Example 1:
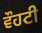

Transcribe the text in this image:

ਵੌਹਟੀ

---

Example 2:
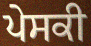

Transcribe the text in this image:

ਪੇਸਕੀ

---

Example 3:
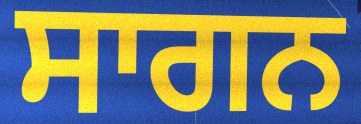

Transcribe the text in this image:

ਸਾਗਨ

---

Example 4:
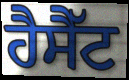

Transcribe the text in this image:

ਹੈਸੈੱਟ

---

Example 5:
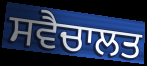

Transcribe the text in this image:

ਸਵੈਚਾਲਤ